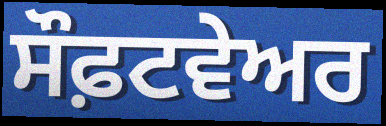
ਸੌਫ਼ਟਵੇਅਰ